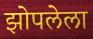
झोपलेला